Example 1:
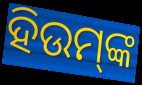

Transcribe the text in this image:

ହିଉମ୍‌ଙ୍କ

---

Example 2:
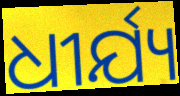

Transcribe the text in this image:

ଧୀର୍ଯ୍ୟ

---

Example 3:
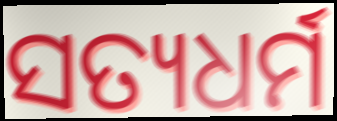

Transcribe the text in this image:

ସତ୍ୟଧର୍ମ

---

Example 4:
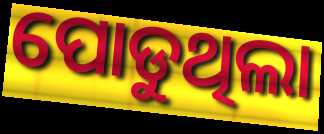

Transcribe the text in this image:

ପୋଡୁଥିଲା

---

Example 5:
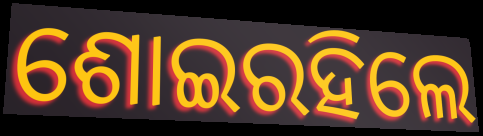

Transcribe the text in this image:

ଶୋଇରହିଲେ